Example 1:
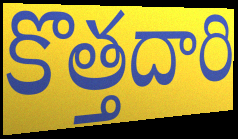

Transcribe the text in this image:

కొత్తదారి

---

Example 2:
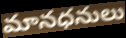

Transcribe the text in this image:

మానధనులు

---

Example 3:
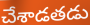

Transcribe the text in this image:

చేశాడతడు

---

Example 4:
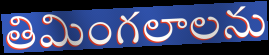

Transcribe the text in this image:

తిమింగలాలను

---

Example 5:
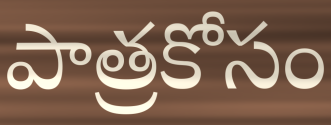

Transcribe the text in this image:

పాత్రకోసం